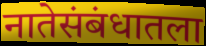
नातेसंबंधातला